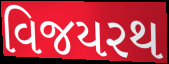
વિજયરથ